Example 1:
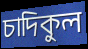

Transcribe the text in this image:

চাদিকুল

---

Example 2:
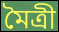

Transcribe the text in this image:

মৈত্ৰী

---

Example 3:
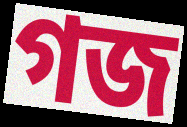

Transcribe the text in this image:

গজ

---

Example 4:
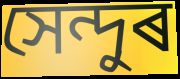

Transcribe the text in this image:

সেন্দুৰ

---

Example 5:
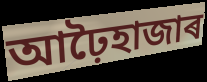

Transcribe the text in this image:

আঢ়ৈহাজাৰ